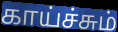
காய்ச்சும்